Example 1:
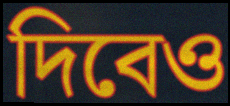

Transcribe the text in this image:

দিবেও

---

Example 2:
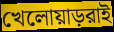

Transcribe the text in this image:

খেলোয়াড়রাই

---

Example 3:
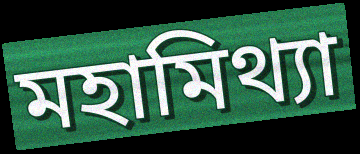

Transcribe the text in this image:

মহামিথ্যা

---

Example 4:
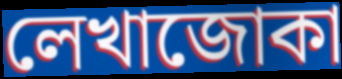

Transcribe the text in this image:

লেখাজোকা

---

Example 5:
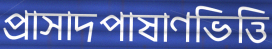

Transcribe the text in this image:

প্রাসাদপাষাণভিত্তি